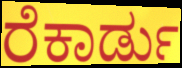
ರೆಕಾರ್ಡು